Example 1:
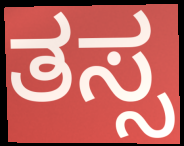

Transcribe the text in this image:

ತಸ್ಸ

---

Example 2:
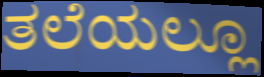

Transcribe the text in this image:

ತಲೆಯಲ್ಲೂ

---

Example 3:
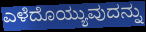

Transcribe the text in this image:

ಎಳೆದೊಯ್ಯುವುದನ್ನು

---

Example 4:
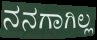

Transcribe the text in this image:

ನನಗಾಗಿಲ್ಲ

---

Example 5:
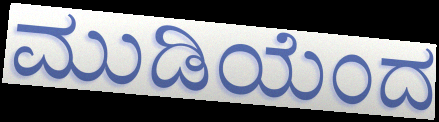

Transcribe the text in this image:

ಮುಡಿಯೆಂದ